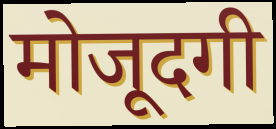
मोजूदगी